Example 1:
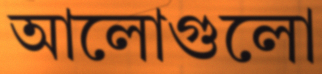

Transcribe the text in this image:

আলোগুলো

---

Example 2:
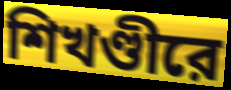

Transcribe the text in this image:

শিখণ্ডীরে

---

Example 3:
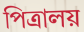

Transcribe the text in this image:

পিত্রালয়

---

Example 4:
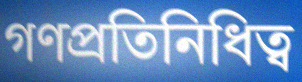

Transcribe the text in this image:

গণপ্রতিনিধিত্ব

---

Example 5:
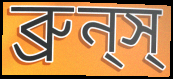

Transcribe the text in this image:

ব্রুন্‌স্